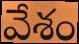
వేశం